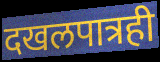
दखलपात्रही